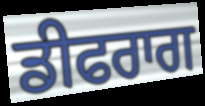
ਡੀਫਰਾਗ